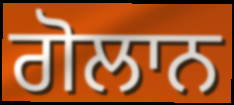
ਗੋਲਾਨ